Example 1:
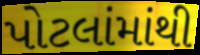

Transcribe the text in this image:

પોટલાંમાંથી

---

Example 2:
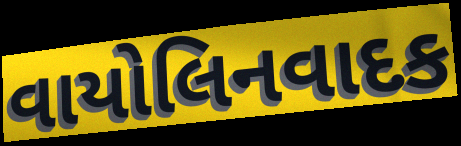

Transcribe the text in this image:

વાયોલિનવાદક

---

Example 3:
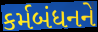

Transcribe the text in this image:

કર્મબંધનને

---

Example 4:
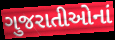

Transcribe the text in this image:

ગુજરાતીઓનાં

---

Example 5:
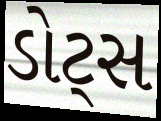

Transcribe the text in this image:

ડોટ્સ